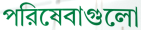
পরিষেবাগুলো